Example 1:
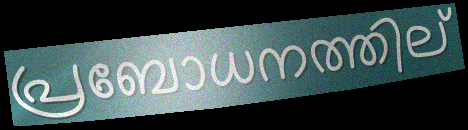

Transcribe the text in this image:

പ്രബോധനത്തില്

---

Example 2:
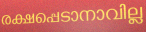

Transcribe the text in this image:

രക്ഷപ്പെടാനാവില്ല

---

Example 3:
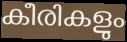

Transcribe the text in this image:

കീരികളും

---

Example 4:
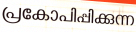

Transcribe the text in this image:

പ്രകോപിപ്പിക്കുന്ന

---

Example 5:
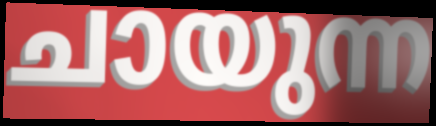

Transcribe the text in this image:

ചായുന്ന